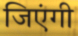
जिएंगी